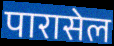
पारासेल